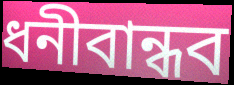
ধনীবান্ধব